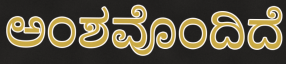
ಅಂಶವೊಂದಿದೆ